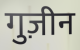
गुज़ीन